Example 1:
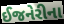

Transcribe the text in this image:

ઈજનેરીના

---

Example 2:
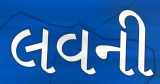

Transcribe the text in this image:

લવની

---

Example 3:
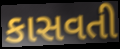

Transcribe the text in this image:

કાસવતી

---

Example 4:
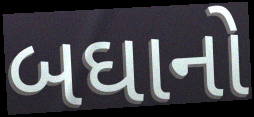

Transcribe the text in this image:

બઘાનો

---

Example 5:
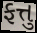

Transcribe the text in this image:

ફત્તુ